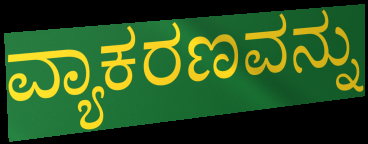
ವ್ಯಾಕರಣವನ್ನು